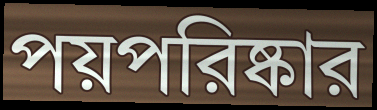
পয়পরিষ্কার